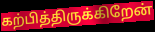
கற்பித்திருக்கிறேன்